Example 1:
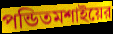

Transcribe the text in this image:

পন্ডিতমশাইয়ের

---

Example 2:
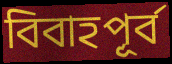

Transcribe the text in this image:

বিবাহপূর্ব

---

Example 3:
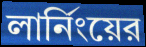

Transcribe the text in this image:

লার্নিংয়ের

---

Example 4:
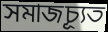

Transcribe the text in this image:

সমাজচ্যূত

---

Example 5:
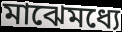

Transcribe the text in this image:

মাঝেমধ্যে